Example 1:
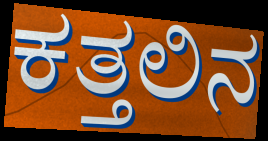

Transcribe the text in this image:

ಕತ್ತಲಿನ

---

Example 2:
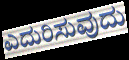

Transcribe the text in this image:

ಎದುರಿಸುವುದು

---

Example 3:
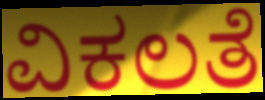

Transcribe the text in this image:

ವಿಕಲತೆ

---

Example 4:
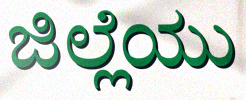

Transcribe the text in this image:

ಜಿಲ್ಲೆಯು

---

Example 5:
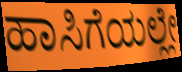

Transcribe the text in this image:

ಹಾಸಿಗೆಯಲ್ಲೇ